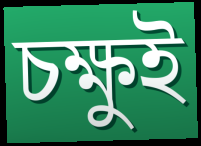
চক্ষুই